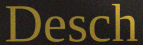
Desch